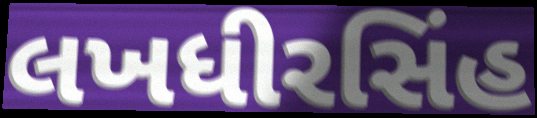
લખધીરસિંહ